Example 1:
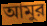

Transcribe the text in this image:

আমুর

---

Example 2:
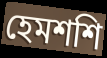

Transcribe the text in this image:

হেমশশি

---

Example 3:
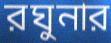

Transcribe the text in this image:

রঘুনার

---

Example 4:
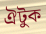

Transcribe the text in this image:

ঐটুক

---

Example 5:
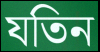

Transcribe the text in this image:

যতিন